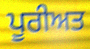
ਪੂਰੀਅਤ